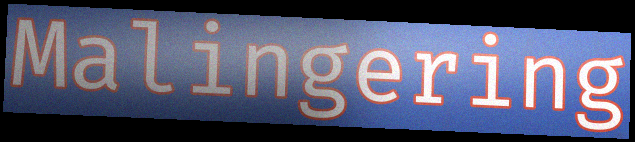
Malingering